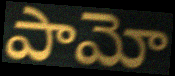
పామో